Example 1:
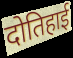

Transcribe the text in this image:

दोतिहाई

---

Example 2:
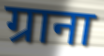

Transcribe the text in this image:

ग्राना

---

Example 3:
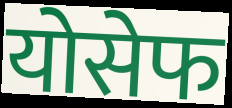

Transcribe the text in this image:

योसेफ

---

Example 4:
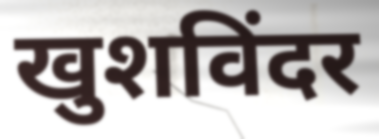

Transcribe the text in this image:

खुशविंदर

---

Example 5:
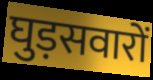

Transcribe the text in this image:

घुड़सवारों